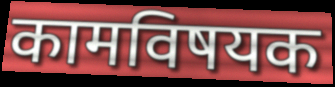
कामविषयक